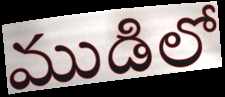
ముడిలో